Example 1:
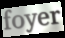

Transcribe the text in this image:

foyer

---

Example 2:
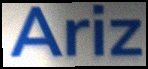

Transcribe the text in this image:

Ariz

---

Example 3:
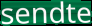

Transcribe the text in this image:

sendte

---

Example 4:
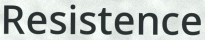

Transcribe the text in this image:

Resistence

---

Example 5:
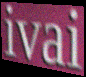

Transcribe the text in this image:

ivai